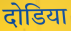
दोडिया